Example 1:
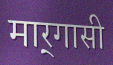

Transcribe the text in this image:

मार्गासी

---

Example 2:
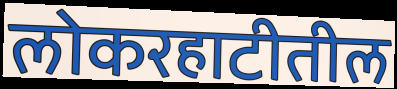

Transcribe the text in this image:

लोकरहाटीतील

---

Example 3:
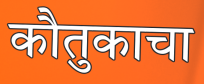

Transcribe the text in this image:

कौतुकाचा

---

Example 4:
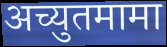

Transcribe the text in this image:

अच्युतमामा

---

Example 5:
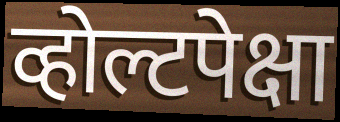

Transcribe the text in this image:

व्होल्टपेक्षा